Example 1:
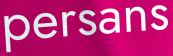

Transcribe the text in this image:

persans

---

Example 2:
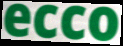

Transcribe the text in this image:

ecco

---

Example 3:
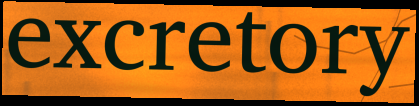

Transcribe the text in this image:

excretory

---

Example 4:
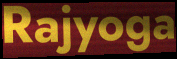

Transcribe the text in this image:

Rajyoga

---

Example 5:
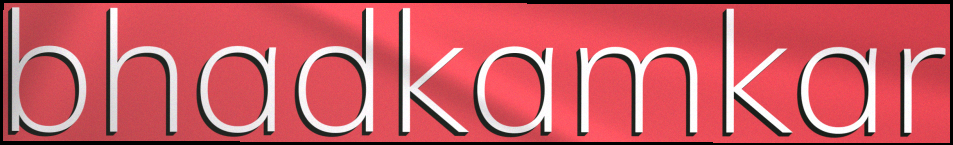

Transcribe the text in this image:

bhadkamkar